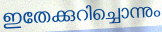
ഇതേക്കുറിച്ചൊന്നും